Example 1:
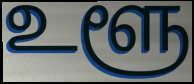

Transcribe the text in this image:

உளூ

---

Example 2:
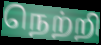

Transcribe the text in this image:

நெற்றி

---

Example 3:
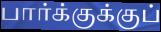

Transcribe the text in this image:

பார்க்குக்குப்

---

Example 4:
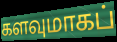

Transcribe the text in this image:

களவுமாகப்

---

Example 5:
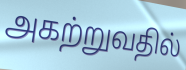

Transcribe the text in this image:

அகற்றுவதில்